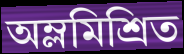
অম্লমিশ্রিত